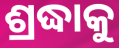
ଶ୍ରଦ୍ଧାକୁ